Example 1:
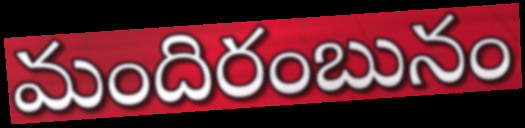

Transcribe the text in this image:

మందిరంబునం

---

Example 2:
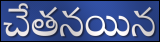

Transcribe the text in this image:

చేతనయిన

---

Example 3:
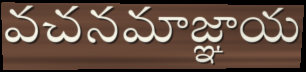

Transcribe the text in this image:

వచనమాజ్ఞాయ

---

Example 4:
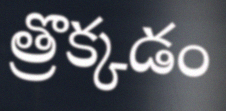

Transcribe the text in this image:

త్రొక్కడం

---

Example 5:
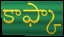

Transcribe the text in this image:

కాఫ్కా